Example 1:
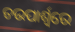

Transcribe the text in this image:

ଚଉପାର୍ଶ୍ୱରେ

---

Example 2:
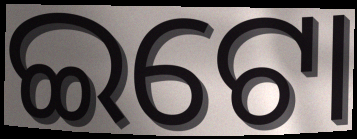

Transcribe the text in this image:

ଇଟୋ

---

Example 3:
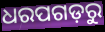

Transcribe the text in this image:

ଧରପଗଡ଼ରୁ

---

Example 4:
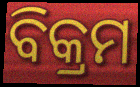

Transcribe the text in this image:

ବିକ୍ରମ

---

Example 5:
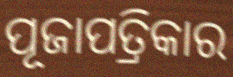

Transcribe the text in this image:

ପୂଜାପତ୍ରିକାର